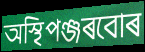
অস্থিপঞ্জৰবোৰ